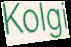
Kolgi